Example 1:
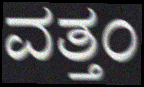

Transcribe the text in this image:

ವತ್ತಂ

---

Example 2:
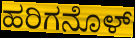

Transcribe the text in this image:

ಹರಿಗನೊಳ್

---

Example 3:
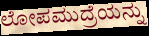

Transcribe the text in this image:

ಲೋಪಮುದ್ರೆಯನ್ನು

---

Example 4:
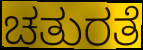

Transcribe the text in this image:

ಚತುರತೆ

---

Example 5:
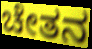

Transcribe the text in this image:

ಚೇತನ